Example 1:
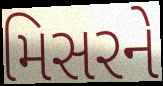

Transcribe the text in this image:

મિસરને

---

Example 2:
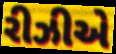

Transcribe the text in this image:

રીઝીએ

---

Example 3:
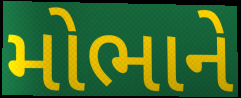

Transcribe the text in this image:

મોભાને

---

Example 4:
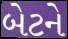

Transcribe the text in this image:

બેટને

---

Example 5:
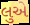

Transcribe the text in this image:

લુએ